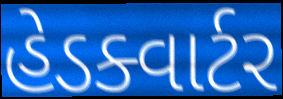
હેડક્વાર્ટર